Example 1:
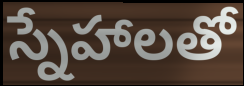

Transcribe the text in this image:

స్నేహాలతో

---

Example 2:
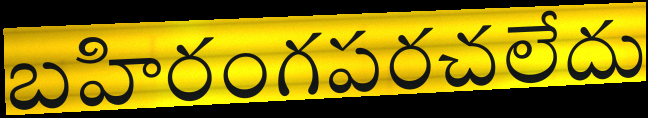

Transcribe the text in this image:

బహిరంగపరచలేదు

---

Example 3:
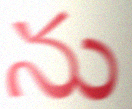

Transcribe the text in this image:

ను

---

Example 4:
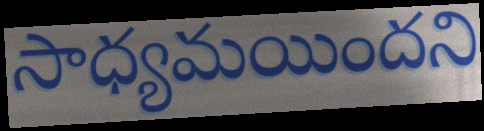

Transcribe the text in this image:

సాధ్యమయిందని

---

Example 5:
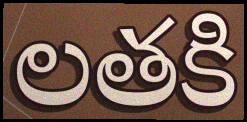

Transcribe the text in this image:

లతకి